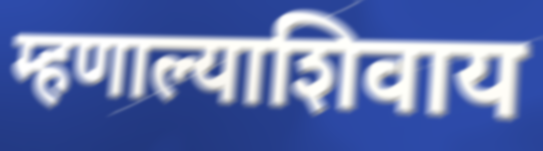
म्हणाल्याशिवाय